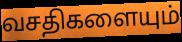
வசதிகளையும்